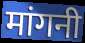
मांगनी